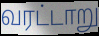
வரட்டாறு